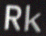
Rk